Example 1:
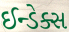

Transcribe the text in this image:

ઈન્ડેક્સ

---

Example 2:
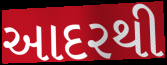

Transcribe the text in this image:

આદરથી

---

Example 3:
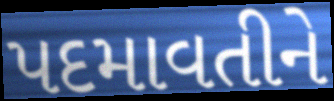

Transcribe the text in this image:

પદમાવતીને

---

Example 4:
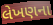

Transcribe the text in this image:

લેખણના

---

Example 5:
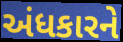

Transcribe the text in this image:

અંધકારને